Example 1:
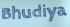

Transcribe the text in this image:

Bhudiya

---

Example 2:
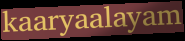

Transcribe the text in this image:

kaaryaalayam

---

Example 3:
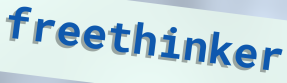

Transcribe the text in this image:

freethinker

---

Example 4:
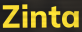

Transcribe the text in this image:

Zinta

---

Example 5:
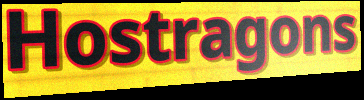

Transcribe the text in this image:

Hostragons